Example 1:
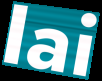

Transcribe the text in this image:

Iai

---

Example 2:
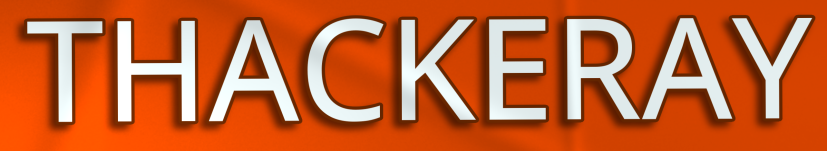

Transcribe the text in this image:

THACKERAY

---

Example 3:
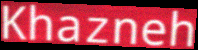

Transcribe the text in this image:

Khazneh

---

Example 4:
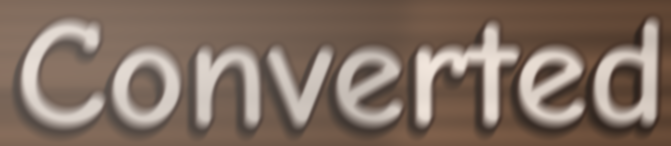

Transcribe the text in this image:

Converted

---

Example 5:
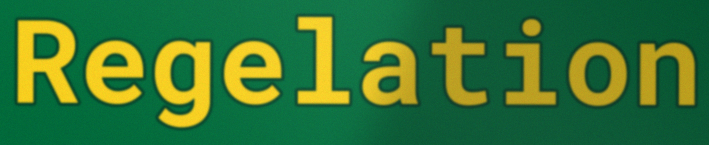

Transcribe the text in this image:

Regelation